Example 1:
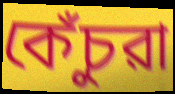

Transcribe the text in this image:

কেঁচুৱা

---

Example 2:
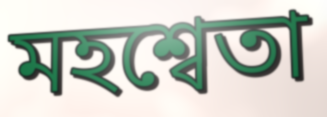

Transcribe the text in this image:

মহশ্বেতা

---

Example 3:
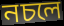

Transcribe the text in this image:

নচলে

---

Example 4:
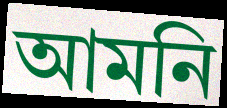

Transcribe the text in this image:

আমনি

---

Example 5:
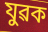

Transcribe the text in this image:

যুৱক